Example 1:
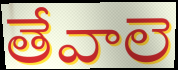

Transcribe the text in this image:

తేవాలె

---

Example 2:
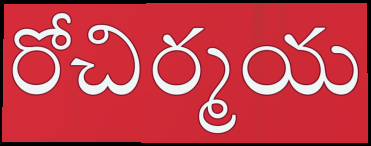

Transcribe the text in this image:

రోచిర్మయ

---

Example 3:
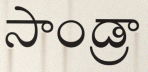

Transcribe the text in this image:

సాండ్రా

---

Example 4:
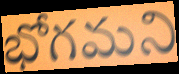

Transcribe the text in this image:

భోగమని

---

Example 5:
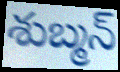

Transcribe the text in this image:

శుబ్మన్